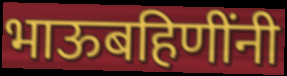
भाऊबहिणींनी